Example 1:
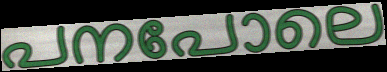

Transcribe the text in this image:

പനപോലെ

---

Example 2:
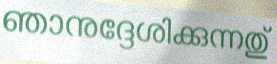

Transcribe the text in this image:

ഞാനുദ്ദേശിക്കുന്നതു്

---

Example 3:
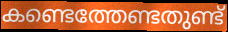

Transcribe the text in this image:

കണ്ടെത്തേണ്ടതുണ്ട്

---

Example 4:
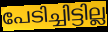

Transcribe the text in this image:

പേടിച്ചിട്ടില്ല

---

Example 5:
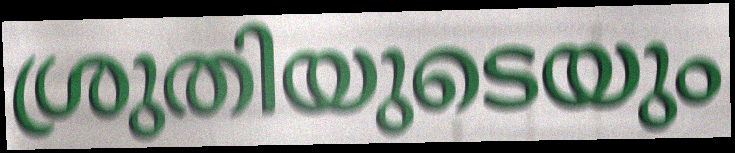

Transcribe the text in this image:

ശ്രുതിയുടെയും